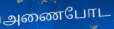
அணைபோட